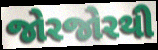
જોરજોરથી